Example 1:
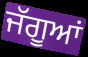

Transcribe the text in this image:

ਜੱਗੂਆਂ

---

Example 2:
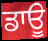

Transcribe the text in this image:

ਡਾਊ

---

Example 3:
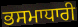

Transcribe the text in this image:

ਭਸਮਾਧਾਰੀ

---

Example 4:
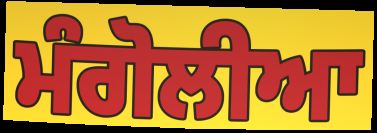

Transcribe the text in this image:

ਮੰਗੋਲੀਆ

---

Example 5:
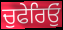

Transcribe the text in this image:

ਚੁਫੇਰਿਓੁਂ